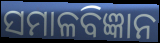
ସମାଳବିଜ୍ଞାନ